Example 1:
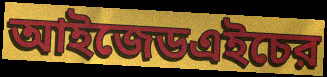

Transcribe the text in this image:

আইজেডএইচের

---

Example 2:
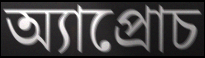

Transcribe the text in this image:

অ্যাপ্রোচ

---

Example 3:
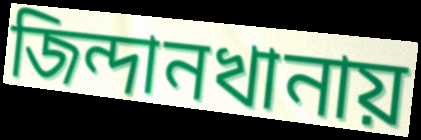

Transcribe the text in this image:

জিন্দানখানায়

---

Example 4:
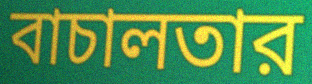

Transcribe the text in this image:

বাচালতার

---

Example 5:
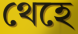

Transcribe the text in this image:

থেহে